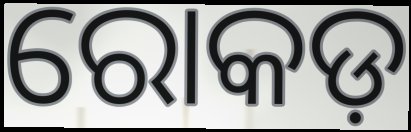
ରୋକଡ଼